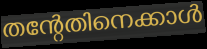
തന്റേതിനെക്കാൾ